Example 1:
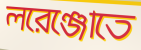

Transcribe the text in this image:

লরেঞ্জোতে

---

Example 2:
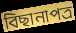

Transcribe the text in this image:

বিছানাপত্র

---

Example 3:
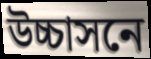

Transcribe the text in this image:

উচ্চাসনে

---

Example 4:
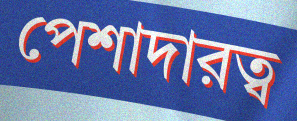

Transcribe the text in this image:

পেশাদারত্ব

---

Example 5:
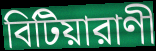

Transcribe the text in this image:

বিটিয়ারাণী